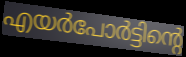
എയർപോർട്ടിന്റെ